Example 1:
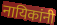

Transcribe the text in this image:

नायिकांनी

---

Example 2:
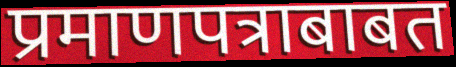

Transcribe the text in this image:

प्रमाणपत्राबाबत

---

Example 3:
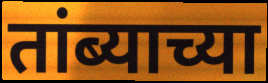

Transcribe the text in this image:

तांब्याच्या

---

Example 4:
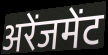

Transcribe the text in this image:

अरेंजमेंट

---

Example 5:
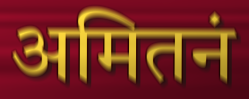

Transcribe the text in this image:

अमितनं